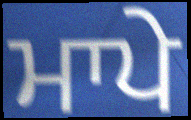
ਮਾਪੇ